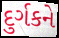
દુર્ગકને